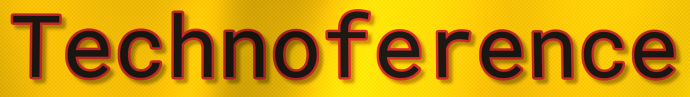
Technoference